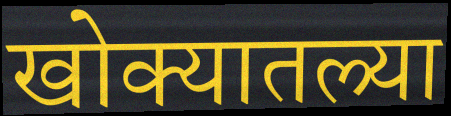
खोक्यातल्या